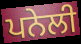
ਪਨੇਲੀ